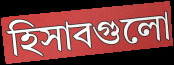
হিসাবগুলো